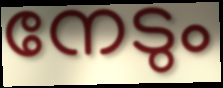
നേടും